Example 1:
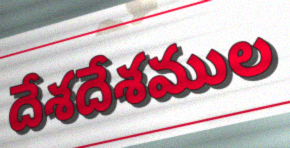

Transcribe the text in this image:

దేశదేశముల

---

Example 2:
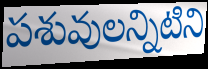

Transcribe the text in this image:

పశువులన్నిటిని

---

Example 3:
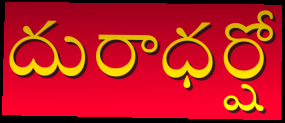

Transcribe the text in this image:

దురాధర్షో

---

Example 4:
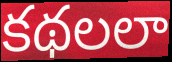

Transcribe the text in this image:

కథలలా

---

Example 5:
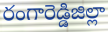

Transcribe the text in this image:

రంగారెడ్డిజిల్లా